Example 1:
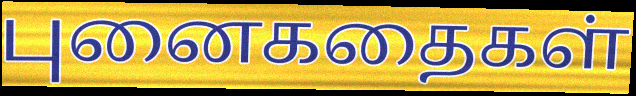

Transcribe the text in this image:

புனைகதைகள்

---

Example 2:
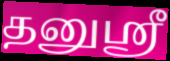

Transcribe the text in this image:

தனுஸ்ரீ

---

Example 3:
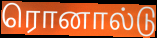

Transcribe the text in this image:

ரொனால்டு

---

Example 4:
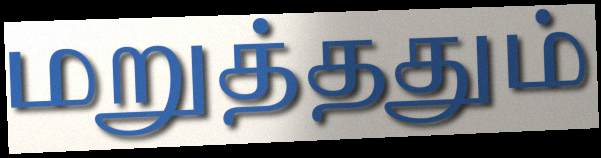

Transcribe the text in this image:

மறுத்ததும்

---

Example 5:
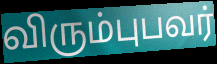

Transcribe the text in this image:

விரும்புபவர்